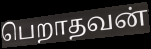
பெறாதவன்